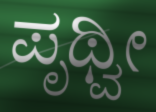
ಪೃಥ್ವೀ